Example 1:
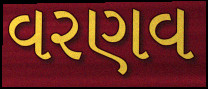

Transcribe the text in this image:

વરણવ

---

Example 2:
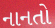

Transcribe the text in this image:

નાનતો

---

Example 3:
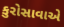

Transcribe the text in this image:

કુરોસાવાએ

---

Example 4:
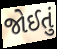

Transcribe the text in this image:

જોઈતું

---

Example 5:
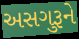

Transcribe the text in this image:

અસગુરૂને